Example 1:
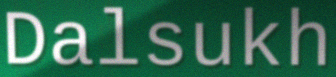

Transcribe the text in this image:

Dalsukh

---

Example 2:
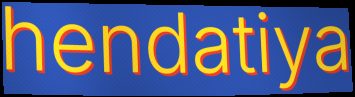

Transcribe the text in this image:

hendatiya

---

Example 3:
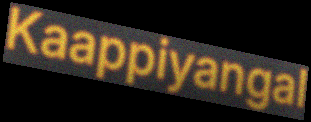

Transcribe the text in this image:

Kaappiyangal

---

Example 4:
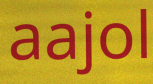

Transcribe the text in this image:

aajol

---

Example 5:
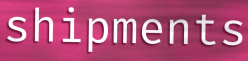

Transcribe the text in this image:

shipments